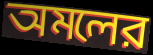
অমলের